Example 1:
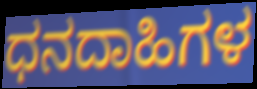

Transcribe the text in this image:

ಧನದಾಹಿಗಳ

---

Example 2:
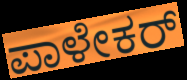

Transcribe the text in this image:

ಪಾಳೇಕರ್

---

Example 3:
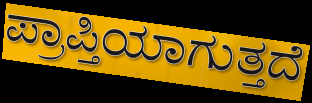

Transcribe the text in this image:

ಪ್ರಾಪ್ತಿಯಾಗುತ್ತದೆ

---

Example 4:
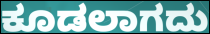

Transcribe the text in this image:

ಕೂಡಲಾಗದು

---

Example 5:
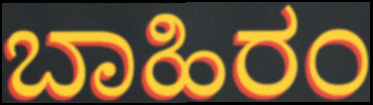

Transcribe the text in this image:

ಬಾಹಿರಂ